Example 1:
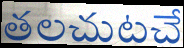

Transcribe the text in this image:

తలచుటచే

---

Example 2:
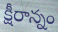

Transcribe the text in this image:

క్షీరాన్నం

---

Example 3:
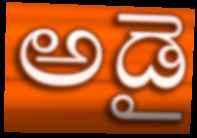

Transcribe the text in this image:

అడై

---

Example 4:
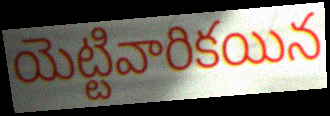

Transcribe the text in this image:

యెట్టివారికయిన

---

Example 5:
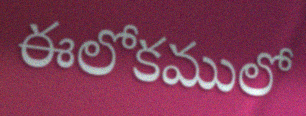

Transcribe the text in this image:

ఈలోకములో